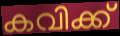
കവിക്ക്